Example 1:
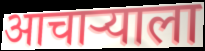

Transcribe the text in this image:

आचाऱ्याला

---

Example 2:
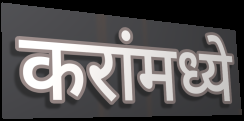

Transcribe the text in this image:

करांमध्ये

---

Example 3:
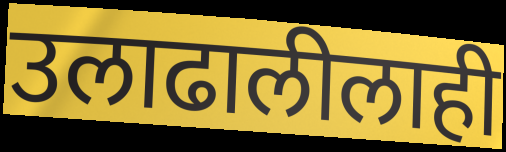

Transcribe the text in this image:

उलाढालीलाही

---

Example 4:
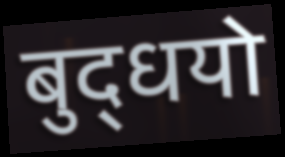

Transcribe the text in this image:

बुद्धयो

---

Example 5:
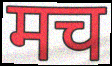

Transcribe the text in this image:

मच